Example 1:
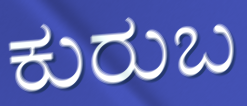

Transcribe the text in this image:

ಕುರುಬ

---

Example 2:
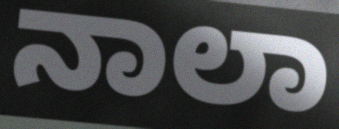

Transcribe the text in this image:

ನಾಲಾ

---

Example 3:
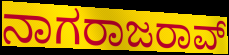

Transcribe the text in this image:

ನಾಗರಾಜರಾವ್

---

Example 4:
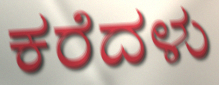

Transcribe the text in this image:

ಕರೆದಳು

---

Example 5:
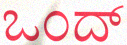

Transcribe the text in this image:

ಒಂದ್